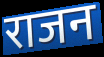
राजन